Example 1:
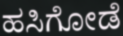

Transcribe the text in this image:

ಹಸಿಗೋಡೆ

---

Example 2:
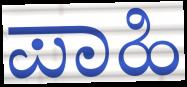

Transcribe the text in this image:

ಪಾಹಿ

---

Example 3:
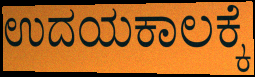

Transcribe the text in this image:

ಉದಯಕಾಲಕ್ಕೆ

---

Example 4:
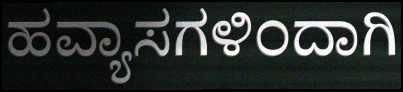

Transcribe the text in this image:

ಹವ್ಯಾಸಗಳಿಂದಾಗಿ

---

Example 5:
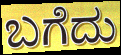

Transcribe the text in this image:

ಬಗೆದು